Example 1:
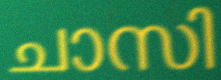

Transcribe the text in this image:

ചാസി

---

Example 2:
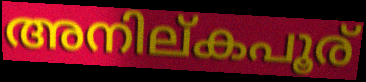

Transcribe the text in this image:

അനില്കപൂര്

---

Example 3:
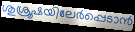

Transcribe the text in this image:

ശുശ്രൂഷയിലേർപ്പെടാൻ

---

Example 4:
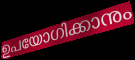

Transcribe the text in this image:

ഉപയോഗിക്കാനും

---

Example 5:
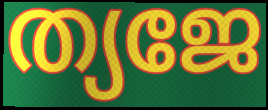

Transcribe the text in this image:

ത്യജേ